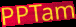
PPTam